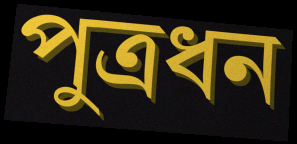
পুত্রধন